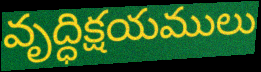
వృద్ధిక్షయములు